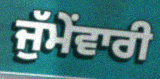
ਜੁੱਮੇਂਵਾਰੀ